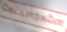
கேட்பார்களே